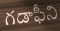
గడాఫీని